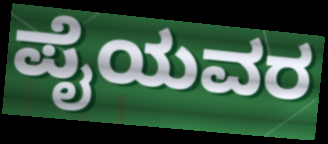
ಪೈಯವರ